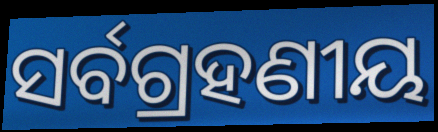
ସର୍ବଗ୍ରହଣୀୟ